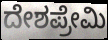
ದೇಶಪ್ರೇಮಿ